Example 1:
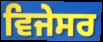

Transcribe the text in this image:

ਵਿਜੇਸਰ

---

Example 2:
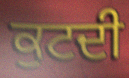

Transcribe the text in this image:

ਕੁਟਦੀ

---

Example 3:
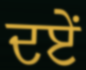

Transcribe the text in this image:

ਦਏਂ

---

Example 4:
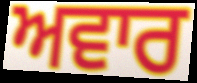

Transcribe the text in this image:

ਅਵਾਰ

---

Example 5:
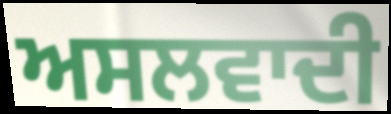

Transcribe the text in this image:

ਅਸਲਵਾਦੀ